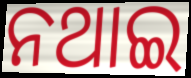
ନଥାଇ